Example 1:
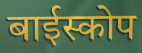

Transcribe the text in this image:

बाईस्कोप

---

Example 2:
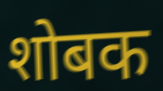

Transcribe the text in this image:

शोबक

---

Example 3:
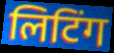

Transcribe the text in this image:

लिटिंग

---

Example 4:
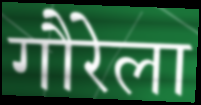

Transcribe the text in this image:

गौरेला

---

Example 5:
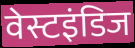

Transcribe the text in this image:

वेस्टइंडिज